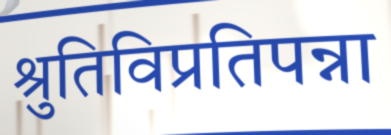
श्रुतिविप्रतिपन्ना